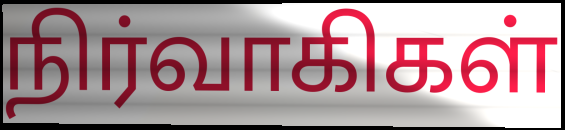
நிர்வாகிகள்